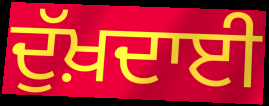
ਦੁੱਖ਼ਦਾਈ